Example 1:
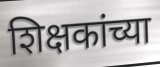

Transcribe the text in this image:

शिक्षकांच्या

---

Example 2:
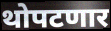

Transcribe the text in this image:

थोपटणार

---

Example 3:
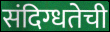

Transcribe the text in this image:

संदिग्धतेची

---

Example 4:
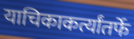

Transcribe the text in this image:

याचिकाकर्त्यांतर्फे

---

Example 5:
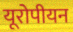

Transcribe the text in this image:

यूरोपीयन